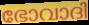
ഭോവാദി